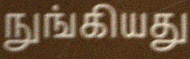
நுங்கியது